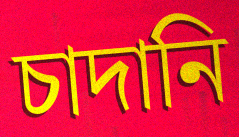
চাদানি